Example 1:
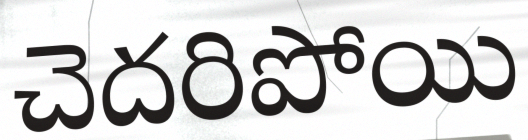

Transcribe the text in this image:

చెదరిపోయి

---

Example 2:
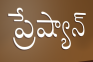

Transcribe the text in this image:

ప్రేష్యాన్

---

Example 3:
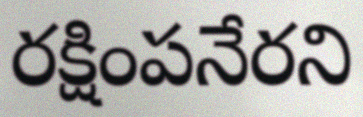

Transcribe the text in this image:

రక్షింపనేరని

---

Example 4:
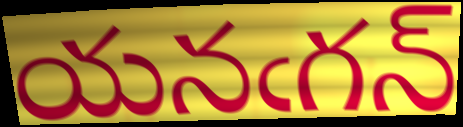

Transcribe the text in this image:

యనఁగన్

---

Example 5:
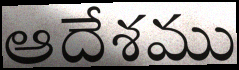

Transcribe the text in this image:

ఆదేశము